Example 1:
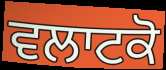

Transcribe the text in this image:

ਵਲਾਟਕੋ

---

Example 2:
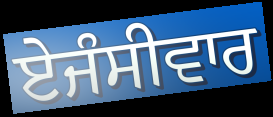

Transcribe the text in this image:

ਏਜੰਸੀਵਾਰ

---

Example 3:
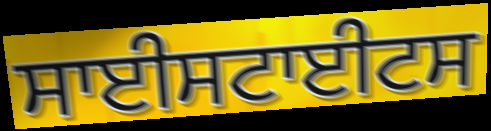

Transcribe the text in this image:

ਸਾਈਸਟਾਈਟਸ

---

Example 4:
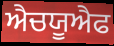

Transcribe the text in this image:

ਐਚਯੂਐਫ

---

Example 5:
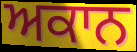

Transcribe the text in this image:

ਅਕਾਨ